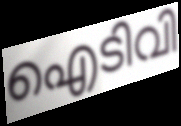
ഐടിവി